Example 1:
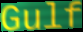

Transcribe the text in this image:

Gulf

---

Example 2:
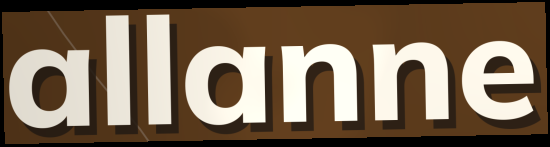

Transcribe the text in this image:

allanne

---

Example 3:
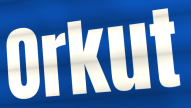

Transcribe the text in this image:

Orkut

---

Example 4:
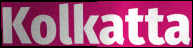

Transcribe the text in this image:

Kolkatta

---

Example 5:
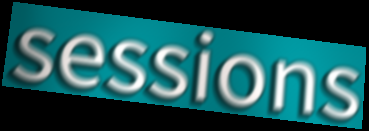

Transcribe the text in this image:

sessions